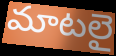
మాటలై